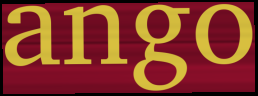
ango